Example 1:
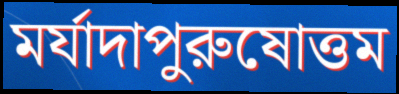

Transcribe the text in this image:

মর্যাদাপুরুষোত্তম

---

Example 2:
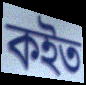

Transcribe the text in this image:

কইত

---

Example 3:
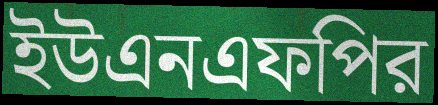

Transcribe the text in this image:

ইউএনএফপির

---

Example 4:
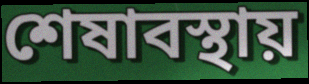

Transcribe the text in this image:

শেষাবস্থায়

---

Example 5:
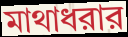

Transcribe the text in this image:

মাথাধরার